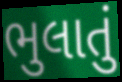
ભુલાતું